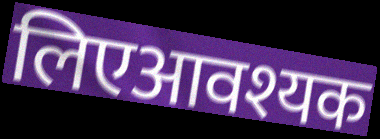
लिएआवश्यक